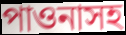
পাওনাসহ